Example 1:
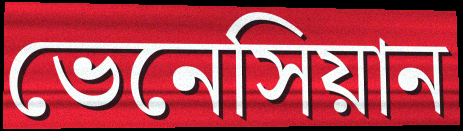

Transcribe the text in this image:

ভেনেসিয়ান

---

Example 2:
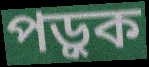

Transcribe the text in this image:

পড়ুক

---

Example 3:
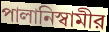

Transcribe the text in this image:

পালানিস্বামীর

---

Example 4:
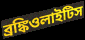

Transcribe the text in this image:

ব্রঙ্কিওলাইটিস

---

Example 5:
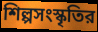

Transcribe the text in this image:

শিল্পসংস্কৃতির